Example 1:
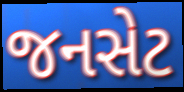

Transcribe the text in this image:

જનસેટ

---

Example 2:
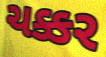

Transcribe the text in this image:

ચક્કર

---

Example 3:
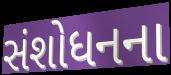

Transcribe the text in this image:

સંશોધનના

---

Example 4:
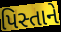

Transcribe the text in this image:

પિસ્તાને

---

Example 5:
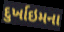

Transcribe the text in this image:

દુર્ખાઇમના